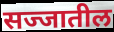
सज्जातील